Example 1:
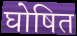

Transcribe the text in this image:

घोषित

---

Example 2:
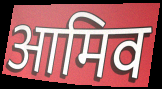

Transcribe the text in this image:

आमिव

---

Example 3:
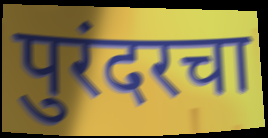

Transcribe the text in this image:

पुरंदरचा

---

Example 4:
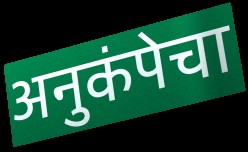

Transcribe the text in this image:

अनुकंपेचा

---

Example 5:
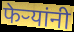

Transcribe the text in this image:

फेऱ्यांनी